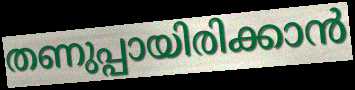
തണുപ്പായിരിക്കാൻ